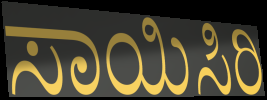
ಸಾಯಿಸಿರಿ